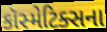
કૉસ્મેટિક્સના